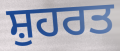
ਸ਼ੁਹਰਤ